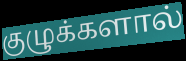
குழுக்களால்